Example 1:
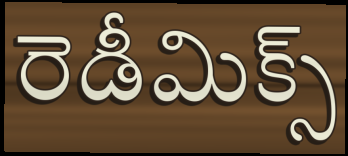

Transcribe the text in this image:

రెడీమిక్స్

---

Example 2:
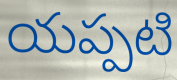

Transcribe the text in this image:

యప్పటి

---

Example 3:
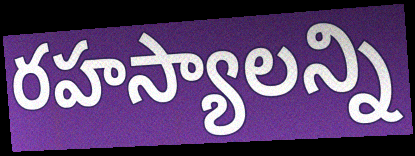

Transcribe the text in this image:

రహస్యాలన్ని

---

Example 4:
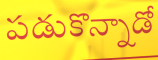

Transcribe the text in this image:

పడుకొన్నాడో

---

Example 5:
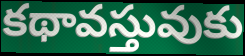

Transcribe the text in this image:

కథావస్తువుకు